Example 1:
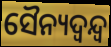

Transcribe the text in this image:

ସୈନ୍ୟଦ୍ୱନ୍ଦ୍ୱ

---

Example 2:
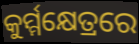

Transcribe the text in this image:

କୁର୍ମ୍ମକ୍ଷେତ୍ରରେ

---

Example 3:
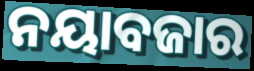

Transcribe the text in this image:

ନୟାବଜାର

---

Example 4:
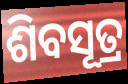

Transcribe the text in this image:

ଶିବସୂତ୍ର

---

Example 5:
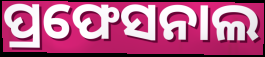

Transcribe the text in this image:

ପ୍ରଫେସନାଲ